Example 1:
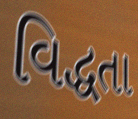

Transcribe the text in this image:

વિદ્ધતા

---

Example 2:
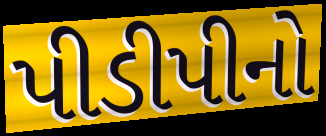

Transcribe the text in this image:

પીડીપીનો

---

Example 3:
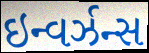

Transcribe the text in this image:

ઇન્વર્ઝન્સ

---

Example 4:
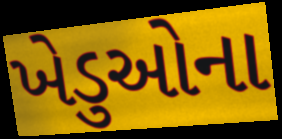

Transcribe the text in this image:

ખેડુઓના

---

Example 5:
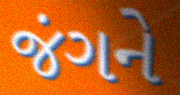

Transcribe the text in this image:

જંગને